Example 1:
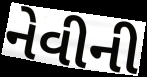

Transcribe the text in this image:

નેવીની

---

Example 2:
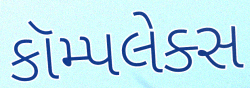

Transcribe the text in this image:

કૉમ્પલેક્સ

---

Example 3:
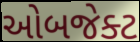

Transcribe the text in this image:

ઓબજેક્ટ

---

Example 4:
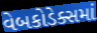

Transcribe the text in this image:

વેબકોડેક્સમાં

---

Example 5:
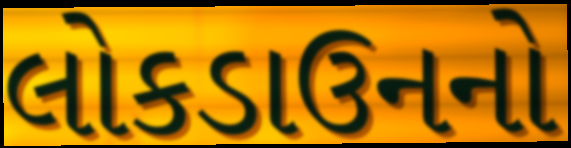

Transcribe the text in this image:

લોકડાઉનનો